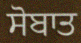
ਸੋਬਾਤ